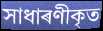
সাধাৰণীকৃত